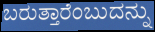
ಬರುತ್ತಾರೆಂಬುದನ್ನು